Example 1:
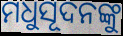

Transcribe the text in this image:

ମଧୁସୂଦନଙ୍କୁ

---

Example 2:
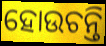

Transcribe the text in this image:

ହୋଉଚନ୍ତି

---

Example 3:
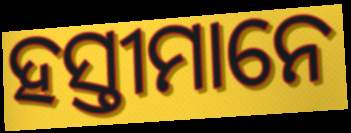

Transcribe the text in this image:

ହସ୍ତୀମାନେ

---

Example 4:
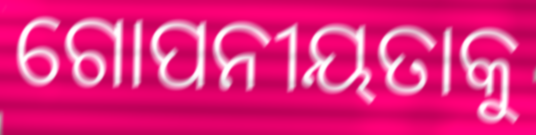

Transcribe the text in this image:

ଗୋପନୀୟତାକୁ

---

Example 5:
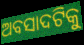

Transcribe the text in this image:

ଅବସାଦଟିକୁ